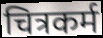
चित्रकर्म